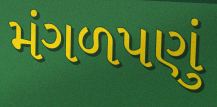
મંગળપણું